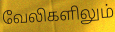
வேலிகளிலும்